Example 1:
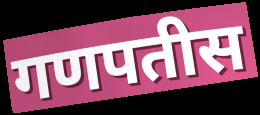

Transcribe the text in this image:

गणपतीस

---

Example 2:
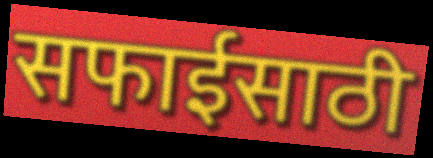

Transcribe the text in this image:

सफाईसाठी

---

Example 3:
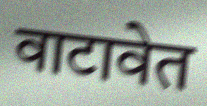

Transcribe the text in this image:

वाटावेत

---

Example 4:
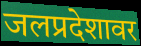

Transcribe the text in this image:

जलप्रदेशावर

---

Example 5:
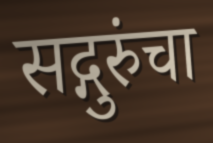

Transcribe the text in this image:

सद्गुरुंचा